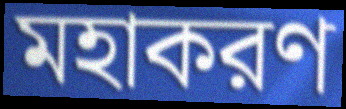
মহাকরণ